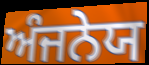
ਅੰਜਨੇਯ